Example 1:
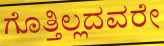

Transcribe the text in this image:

ಗೊತ್ತಿಲ್ಲದವರೇ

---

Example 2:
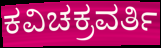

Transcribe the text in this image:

ಕವಿಚಕ್ರವರ್ತಿ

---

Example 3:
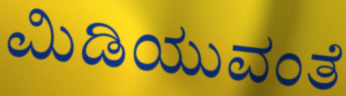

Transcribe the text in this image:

ಮಿಡಿಯುವಂತೆ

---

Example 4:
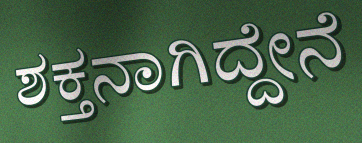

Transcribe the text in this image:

ಶಕ್ತನಾಗಿದ್ದೇನೆ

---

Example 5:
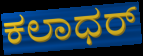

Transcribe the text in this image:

ಕಲಾಧರ್